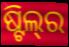
ଷ୍ଟିଲ୍‌ର